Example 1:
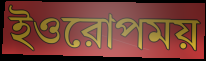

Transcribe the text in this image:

ইওরোপময়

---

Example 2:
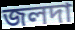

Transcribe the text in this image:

জলদা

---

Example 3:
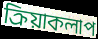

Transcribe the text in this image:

ক্রিয়াকলাপ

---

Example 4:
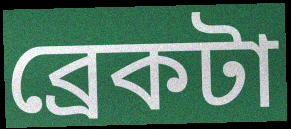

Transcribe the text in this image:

ব্রেকটা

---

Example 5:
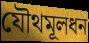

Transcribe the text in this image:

যৌথমূলধন